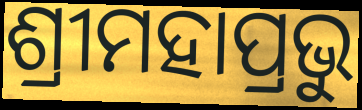
ଶ୍ରୀମହାପ୍ରଭୁ